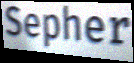
Sepher